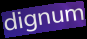
dignum